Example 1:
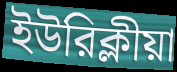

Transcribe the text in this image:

ইউরিক্লীয়া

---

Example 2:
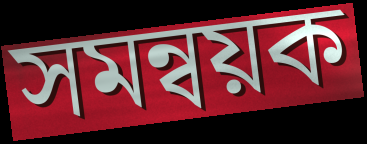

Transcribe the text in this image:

সমন্বয়ক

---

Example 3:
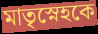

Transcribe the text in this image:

মাতৃস্নেহকে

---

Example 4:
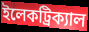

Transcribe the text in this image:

ইলেকট্রিক্যাল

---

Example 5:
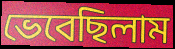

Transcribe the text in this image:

ভেবেছিলাম